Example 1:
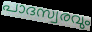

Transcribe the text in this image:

പാദസ്വരവും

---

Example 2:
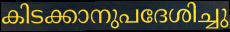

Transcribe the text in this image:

കിടക്കാനുപദേശിച്ചു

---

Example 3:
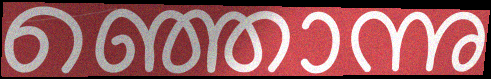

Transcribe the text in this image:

ഞ്ഞൊന്നു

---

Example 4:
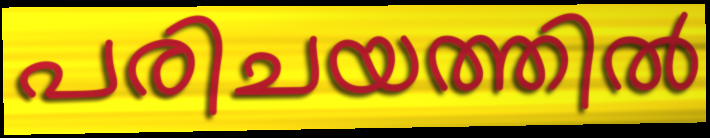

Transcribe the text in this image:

പരിചയത്തിൽ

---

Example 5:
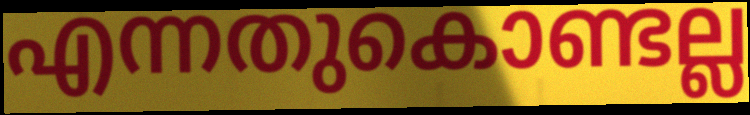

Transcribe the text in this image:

എന്നതുകൊണ്ടല്ല